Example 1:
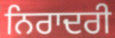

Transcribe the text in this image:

ਨਿਰਾਦਰੀ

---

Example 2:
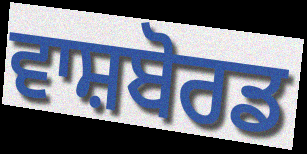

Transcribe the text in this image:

ਵਾਸ਼ਬੋਰਡ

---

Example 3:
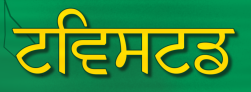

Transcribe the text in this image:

ਟਵਿਸਟਡ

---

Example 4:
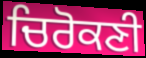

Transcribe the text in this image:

ਚਿਰੋਕਣੀ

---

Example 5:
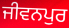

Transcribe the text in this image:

ਜੀਵਨਪੁਰ